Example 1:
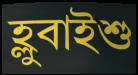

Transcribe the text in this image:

হ্লুবাইশু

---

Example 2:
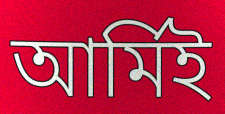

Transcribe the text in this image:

আর্মিই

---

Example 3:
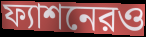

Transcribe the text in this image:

ফ্যাশনেরও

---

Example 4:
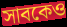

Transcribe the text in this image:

সাবকেও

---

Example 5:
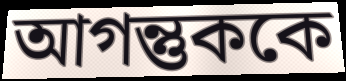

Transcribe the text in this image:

আগন্তুককে